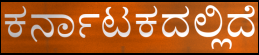
ಕರ್ನಾಟಕದಲ್ಲಿದೆ